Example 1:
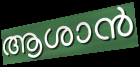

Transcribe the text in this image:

ആശാൻ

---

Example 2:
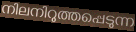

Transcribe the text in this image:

നിലനിറുത്തപ്പെടുന്ന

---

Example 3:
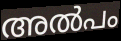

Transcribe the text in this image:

അൽപം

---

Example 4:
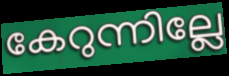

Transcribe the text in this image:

കേറുന്നില്ലേ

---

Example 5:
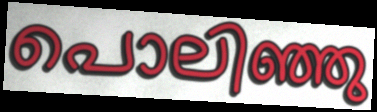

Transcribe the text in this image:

പൊലിഞ്ഞു